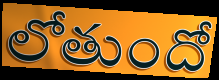
లోతుందో